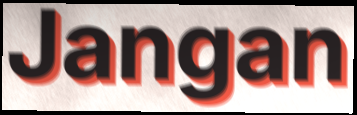
Jangan